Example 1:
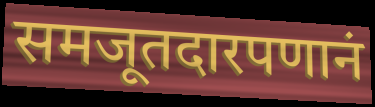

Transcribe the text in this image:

समजूतदारपणानं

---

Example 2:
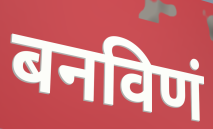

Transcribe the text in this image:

बनविणं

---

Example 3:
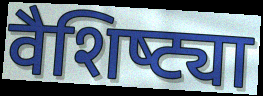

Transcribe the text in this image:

वैशिष्ट्या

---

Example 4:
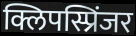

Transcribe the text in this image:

क्लिपस्प्रिंजर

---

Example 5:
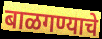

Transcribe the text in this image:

बाळगण्याचे